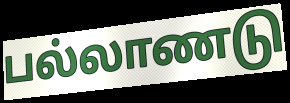
பல்லாணடு